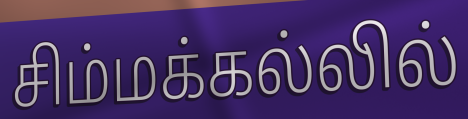
சிம்மக்கல்லில்